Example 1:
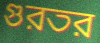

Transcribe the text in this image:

গুরতর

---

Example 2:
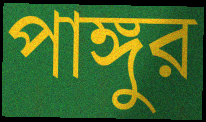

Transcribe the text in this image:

পাঙ্গুর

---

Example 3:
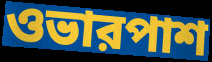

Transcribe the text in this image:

ওভারপাশ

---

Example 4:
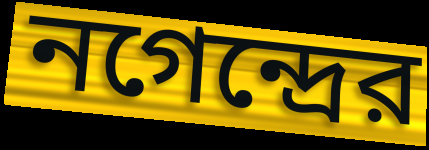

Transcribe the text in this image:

নগেন্দ্রের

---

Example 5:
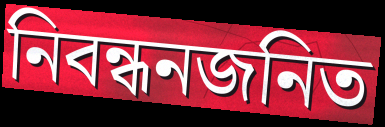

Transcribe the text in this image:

নিবন্ধনজনিত